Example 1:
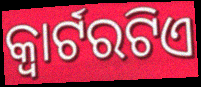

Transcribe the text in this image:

କ୍ୱାର୍ଟରଟିଏ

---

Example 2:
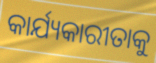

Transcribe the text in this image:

କାର୍ଯ୍ୟକାରୀତାକୁ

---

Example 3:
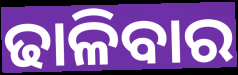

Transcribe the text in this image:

ଢାଳିବାର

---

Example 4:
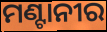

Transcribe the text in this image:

ମଣ୍ଟାନୀର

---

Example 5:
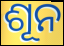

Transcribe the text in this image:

ଶୂନ